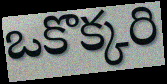
ఒకొక్కరి